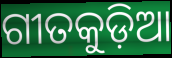
ଗୀତକୁଡ଼ିଆ